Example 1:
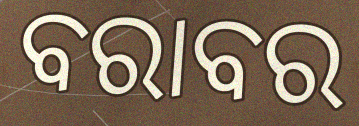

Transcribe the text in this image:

ବରାବର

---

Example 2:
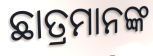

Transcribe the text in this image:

ଛାତ୍ରମାନଙ୍କ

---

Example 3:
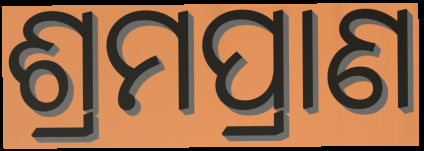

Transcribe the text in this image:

ଶ୍ରମପ୍ରାଣ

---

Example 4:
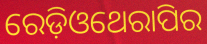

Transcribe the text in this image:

ରେଡ଼ିଓଥେରାପିର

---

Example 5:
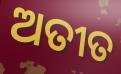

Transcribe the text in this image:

ଅତୀତ